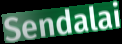
Sendalai